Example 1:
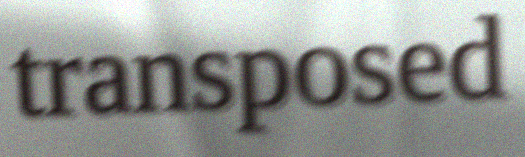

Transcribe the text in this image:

transposed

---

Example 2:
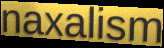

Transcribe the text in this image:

naxalism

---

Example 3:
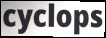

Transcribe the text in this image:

cyclops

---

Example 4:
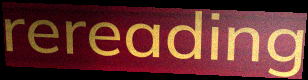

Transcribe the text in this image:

rereading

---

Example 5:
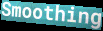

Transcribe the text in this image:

Smoothing